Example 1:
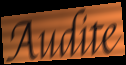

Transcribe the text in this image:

Audite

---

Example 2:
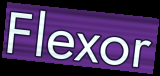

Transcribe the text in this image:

Flexor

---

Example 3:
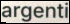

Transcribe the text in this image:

argenti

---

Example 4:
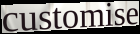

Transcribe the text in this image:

customise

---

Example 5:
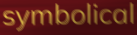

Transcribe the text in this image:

symbolical